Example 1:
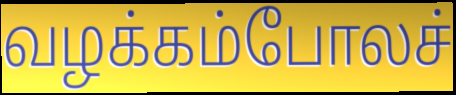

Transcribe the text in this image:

வழக்கம்போலச்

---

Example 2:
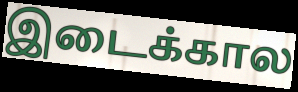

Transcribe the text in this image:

இடைக்கால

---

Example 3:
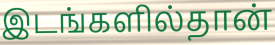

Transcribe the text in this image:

இடங்களில்தான்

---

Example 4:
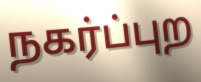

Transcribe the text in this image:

நகர்ப்புற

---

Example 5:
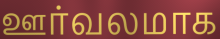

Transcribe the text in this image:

ஊர்வலமாக